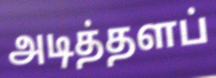
அடித்தளப்